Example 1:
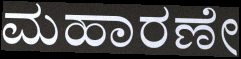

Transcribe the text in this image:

ಮಹಾರಣೇ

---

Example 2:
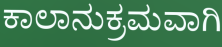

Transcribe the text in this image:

ಕಾಲಾನುಕ್ರಮವಾಗಿ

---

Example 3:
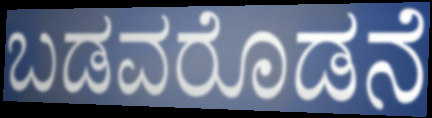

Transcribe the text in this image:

ಬಡವರೊಡನೆ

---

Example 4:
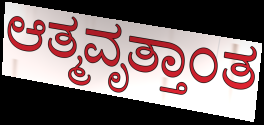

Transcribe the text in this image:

ಆತ್ಮವೃತ್ತಾಂತ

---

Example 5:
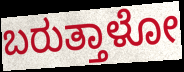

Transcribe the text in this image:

ಬರುತ್ತಾಳೋ